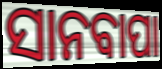
ସାନବାପା